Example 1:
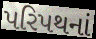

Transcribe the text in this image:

પરિપથનાં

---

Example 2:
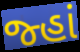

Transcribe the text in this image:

જ્હાં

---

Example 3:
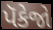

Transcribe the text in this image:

પૅકેજો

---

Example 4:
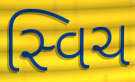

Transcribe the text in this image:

સ્વિચ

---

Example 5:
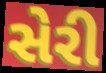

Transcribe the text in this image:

સેરી